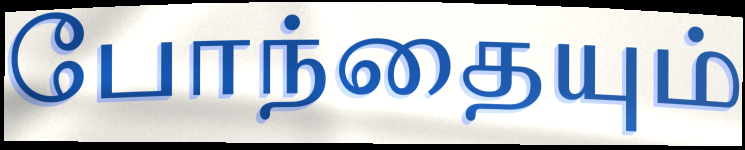
போந்தையும்